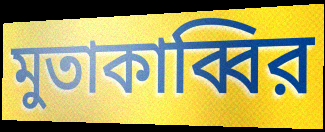
মুতাকাব্বির